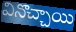
వినొచ్చాయి